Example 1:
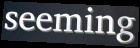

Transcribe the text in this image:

seeming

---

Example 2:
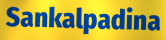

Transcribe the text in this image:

Sankalpadina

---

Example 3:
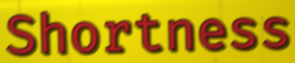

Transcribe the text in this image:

Shortness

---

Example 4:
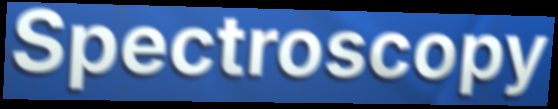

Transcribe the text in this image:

Spectroscopy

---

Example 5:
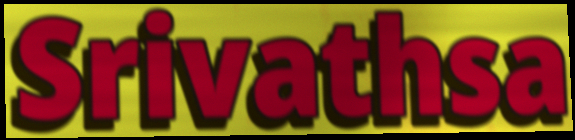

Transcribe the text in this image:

Srivathsa